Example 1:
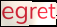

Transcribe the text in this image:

egret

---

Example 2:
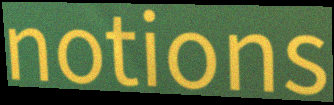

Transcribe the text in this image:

notions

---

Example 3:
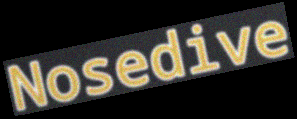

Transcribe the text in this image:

Nosedive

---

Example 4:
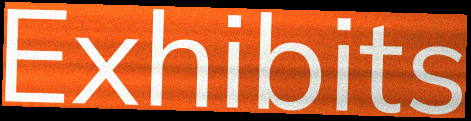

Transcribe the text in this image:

Exhibits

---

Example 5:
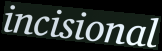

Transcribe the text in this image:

incisional